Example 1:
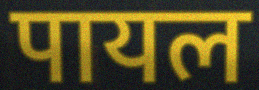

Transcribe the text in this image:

पायल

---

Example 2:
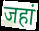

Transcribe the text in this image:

जहां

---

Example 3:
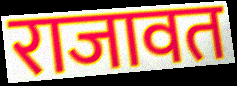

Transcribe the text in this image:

राजावत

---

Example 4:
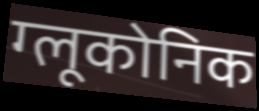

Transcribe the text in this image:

ग्लूकोनिक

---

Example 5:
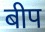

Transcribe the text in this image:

बीप